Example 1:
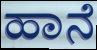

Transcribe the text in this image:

ಹಾನೆ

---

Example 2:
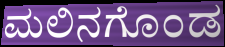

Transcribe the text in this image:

ಮಲಿನಗೊಂಡ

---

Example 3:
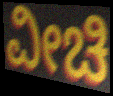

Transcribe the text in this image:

ವೀಚಿ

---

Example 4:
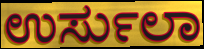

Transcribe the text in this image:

ಉರ್ಸುಲಾ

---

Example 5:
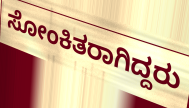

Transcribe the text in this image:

ಸೋಂಕಿತರಾಗಿದ್ದರು